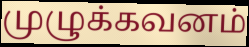
முழுக்கவனம்